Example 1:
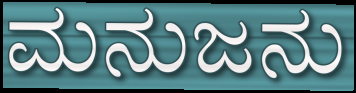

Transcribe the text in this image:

ಮನುಜನು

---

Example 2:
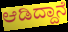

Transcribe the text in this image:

ಆಡಿದ್ದಾನೆ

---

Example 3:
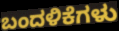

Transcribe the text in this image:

ಬಂದಳಿಕೆಗಳು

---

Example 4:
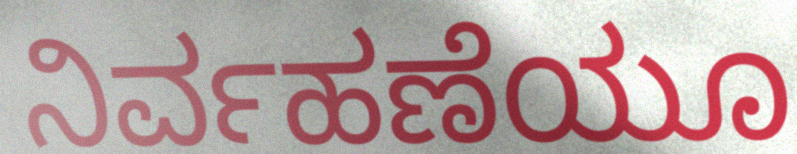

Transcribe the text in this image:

ನಿರ್ವಹಣೆಯೂ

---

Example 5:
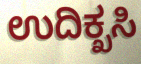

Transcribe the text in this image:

ಉದಿಕ್ಖಸಿ